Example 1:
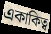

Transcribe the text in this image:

একাকিত্ব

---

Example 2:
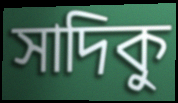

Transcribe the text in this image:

সাদিকু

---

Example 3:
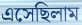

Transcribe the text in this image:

এসেছিলাম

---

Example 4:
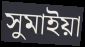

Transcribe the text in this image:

সুমাইয়া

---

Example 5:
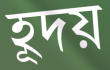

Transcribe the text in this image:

হূদয়